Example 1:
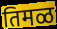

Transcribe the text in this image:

तिमळ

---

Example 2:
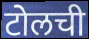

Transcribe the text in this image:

टोलची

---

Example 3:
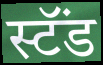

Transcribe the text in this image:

स्टॅंड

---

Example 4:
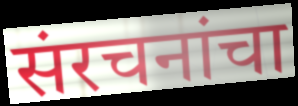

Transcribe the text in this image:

संरचनांचा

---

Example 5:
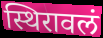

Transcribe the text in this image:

स्थिरावलं